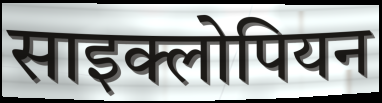
साइक्लोपियन